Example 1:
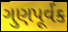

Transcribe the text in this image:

ગુણપૂર્વક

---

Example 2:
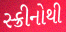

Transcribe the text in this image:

સ્ક્રીનોથી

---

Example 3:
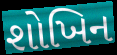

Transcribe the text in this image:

શોખિન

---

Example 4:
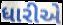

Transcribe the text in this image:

ધારીએ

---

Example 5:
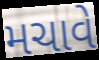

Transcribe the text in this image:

મચાવે